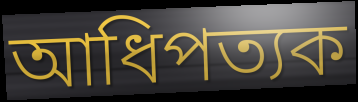
আধিপত্যক